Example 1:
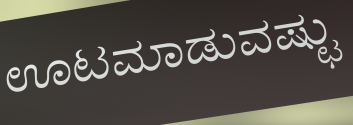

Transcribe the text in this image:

ಊಟಮಾಡುವಷ್ಟು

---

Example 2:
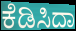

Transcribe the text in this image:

ಕೆಡಿಸಿದಾ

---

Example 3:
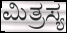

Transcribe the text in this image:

ಮಿತ್ರಸ್ಯ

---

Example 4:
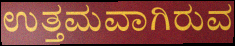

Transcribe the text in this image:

ಉತ್ತಮವಾಗಿರುವ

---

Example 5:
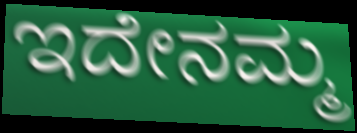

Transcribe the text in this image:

ಇದೇನಮ್ಮ